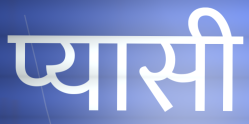
प्यासी